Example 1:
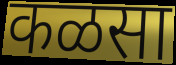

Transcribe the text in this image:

कळसा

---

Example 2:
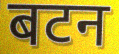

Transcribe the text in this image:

बटन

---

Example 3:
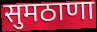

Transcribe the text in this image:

सुमठाणा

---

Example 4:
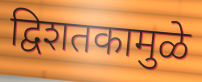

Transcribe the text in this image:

द्विशतकामुळे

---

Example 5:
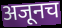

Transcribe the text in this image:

अजूनच